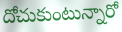
దోచుకుంటున్నారో